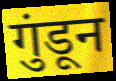
गुंडून